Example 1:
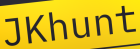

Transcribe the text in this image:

JKhunt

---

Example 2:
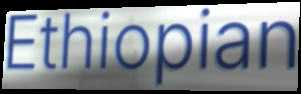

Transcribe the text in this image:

Ethiopian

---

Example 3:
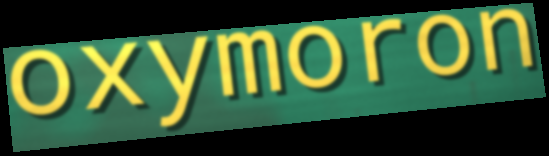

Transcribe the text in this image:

oxymoron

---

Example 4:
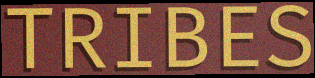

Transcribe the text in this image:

TRIBES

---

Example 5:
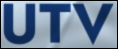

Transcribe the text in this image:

UTV